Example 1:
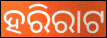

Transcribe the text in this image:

ହରିରାଟ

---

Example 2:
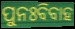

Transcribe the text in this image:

ପୁନଃବିବାହ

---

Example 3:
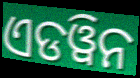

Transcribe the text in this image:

ଏଡୱିନ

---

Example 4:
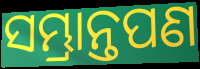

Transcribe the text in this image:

ସମ୍ଭ୍ରାନ୍ତପଣ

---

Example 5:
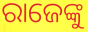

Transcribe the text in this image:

ରାଜେଙ୍କୁ